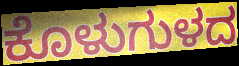
ಕೊಳುಗುಳದ